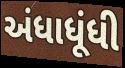
અંધાધૂંધી